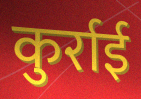
कुर्राई